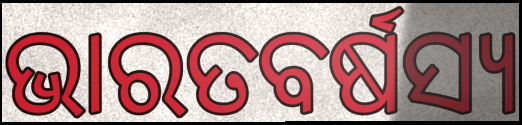
ଭାରତବର୍ଷସ୍ୟ